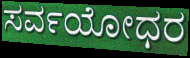
ಸರ್ವಯೋಧರ